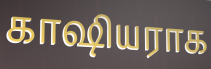
காஷியராக